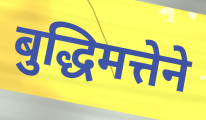
बुद्धिमत्तेने